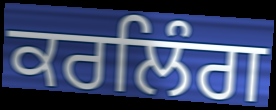
ਕਰਲਿੰਗ